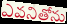
ఎవనితోను